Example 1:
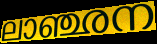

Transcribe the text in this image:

ലാഞ്ഛന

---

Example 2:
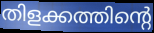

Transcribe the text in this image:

തിളക്കത്തിന്റെ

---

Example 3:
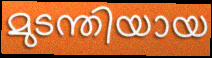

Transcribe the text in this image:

മുടന്തിയായ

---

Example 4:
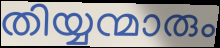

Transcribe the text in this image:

തിയ്യന്മാരും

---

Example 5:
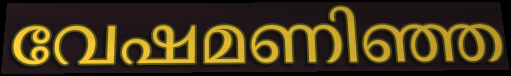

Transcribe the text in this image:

വേഷമണിഞ്ഞ